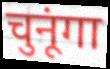
चुनूंगा